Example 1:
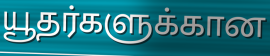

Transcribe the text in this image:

யூதர்களுக்கான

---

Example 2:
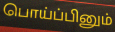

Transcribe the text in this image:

பொய்ப்பினும்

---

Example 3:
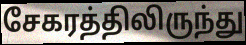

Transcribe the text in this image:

சேகரத்திலிருந்து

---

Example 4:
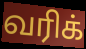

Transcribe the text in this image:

வரிக்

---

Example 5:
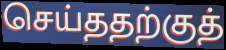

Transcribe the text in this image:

செய்ததற்குத்